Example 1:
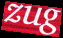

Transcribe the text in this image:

zug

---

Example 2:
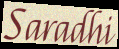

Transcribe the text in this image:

Saradhi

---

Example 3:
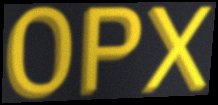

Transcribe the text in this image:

OPX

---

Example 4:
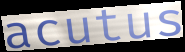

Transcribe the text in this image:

acutus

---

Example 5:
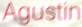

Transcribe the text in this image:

Agustin